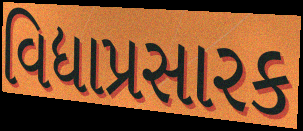
વિદ્યાપ્રસારક